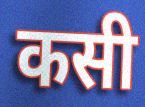
कसी